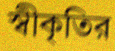
স্বীকৃতির